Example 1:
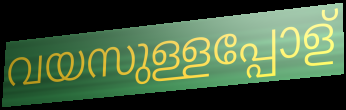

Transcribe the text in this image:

വയസുള്ളപ്പോള്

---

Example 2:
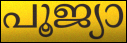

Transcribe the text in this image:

പൂജ്യാ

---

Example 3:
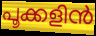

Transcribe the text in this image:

പൂക്കളിൻ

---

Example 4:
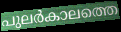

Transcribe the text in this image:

പുലർകാലത്തെ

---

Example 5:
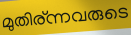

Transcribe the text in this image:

മുതിര്ന്നവരുടെ